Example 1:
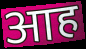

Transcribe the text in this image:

आह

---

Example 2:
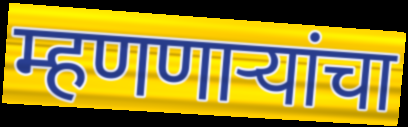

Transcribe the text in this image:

म्हणणाऱ्यांचा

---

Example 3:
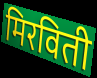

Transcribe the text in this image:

मिरविती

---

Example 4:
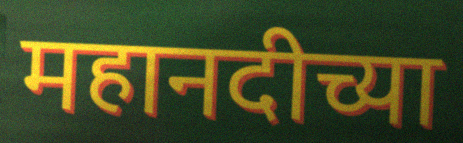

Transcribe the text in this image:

महानदीच्या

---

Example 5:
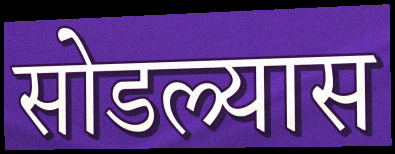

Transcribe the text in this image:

सोडल्यास